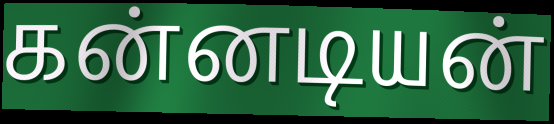
கன்னடியன்